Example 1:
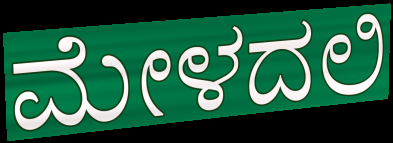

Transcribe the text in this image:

ಮೇಳದಲಿ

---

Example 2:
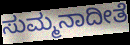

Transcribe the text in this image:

ಸುಮ್ಮನಾದೀತೆ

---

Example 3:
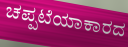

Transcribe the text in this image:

ಚಪ್ಪಟೆಯಾಕಾರದ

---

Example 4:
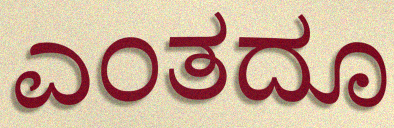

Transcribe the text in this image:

ಎಂತದೂ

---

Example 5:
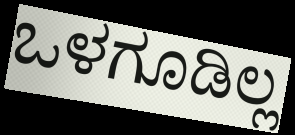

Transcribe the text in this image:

ಒಳಗೂಡಿಲ್ಲ